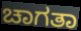
ಚಾಗತಾ